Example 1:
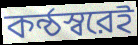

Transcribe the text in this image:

কন্ঠস্বরেই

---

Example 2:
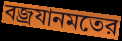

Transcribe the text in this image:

বজ্রযানমতের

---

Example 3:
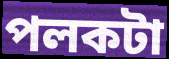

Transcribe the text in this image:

পলকটা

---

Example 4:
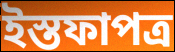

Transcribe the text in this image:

ইস্তফাপত্র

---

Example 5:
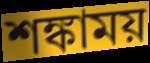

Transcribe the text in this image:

শঙ্কাময়